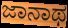
ಜಾನಾಥ